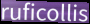
ruficollis